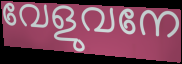
വേളുവനേ